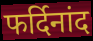
फर्दिनांद